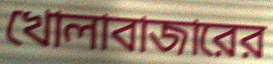
খোলাবাজারের